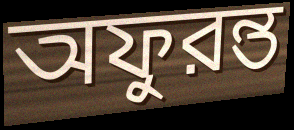
অফুরন্ত